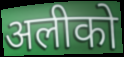
अलीको